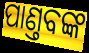
ପାଣ୍ତବଙ୍କ